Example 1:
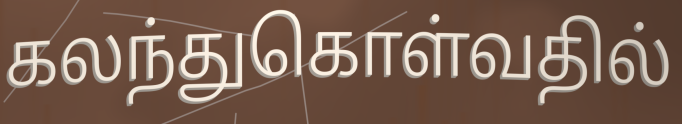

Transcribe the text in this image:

கலந்துகொள்வதில்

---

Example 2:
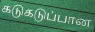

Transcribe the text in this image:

கடுகடுப்பான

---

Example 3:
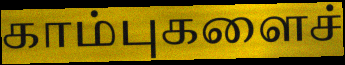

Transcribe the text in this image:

காம்புகளைச்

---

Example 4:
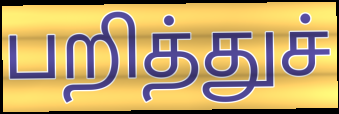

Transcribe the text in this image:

பறித்துச்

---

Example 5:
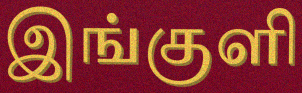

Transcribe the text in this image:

இங்குளி